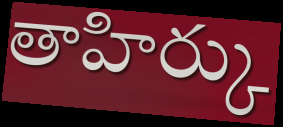
తాహిర్కు